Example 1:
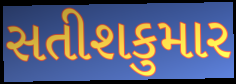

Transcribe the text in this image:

સતીશકુમાર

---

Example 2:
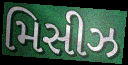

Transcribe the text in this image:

મિસીઝ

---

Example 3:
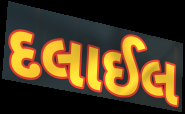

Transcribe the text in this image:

દલાઈલ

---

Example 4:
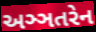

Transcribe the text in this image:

અઞ્ઞતરેન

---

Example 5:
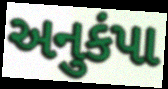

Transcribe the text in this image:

અનુકંપા